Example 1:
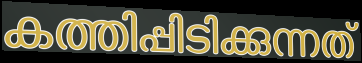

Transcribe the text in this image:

കത്തിപ്പിടിക്കുന്നത്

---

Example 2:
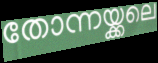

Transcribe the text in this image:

തോന്നയ്ക്കലെ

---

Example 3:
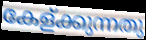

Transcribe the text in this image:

കേള്ക്കുന്നതു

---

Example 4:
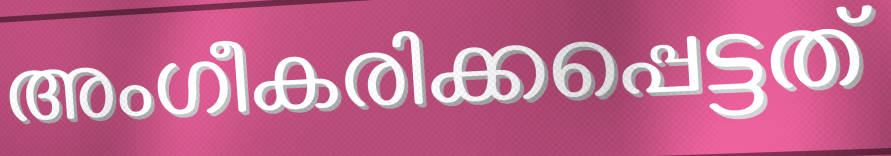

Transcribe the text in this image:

അംഗീകരിക്കപ്പെട്ടത്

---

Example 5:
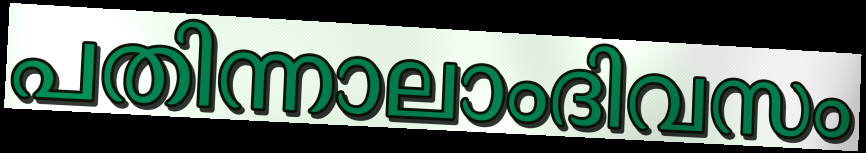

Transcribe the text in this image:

പതിന്നാലാംദിവസം